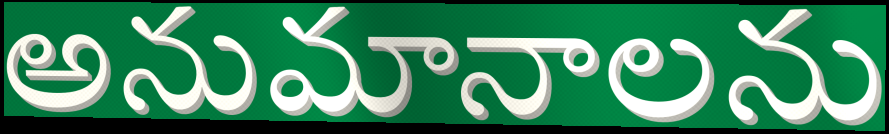
అనుమానాలను